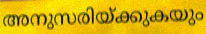
അനുസരിയ്ക്കുകയും